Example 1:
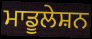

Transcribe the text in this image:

ਮਾਡੂਲੇਸ਼ਨ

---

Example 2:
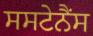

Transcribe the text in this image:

ਸਸਟੇਨੈਂਸ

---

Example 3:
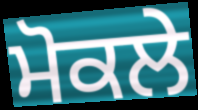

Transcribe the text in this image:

ਮੋਕਲੇ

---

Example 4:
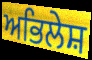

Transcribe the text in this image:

ਅਭਿਲੇਸ਼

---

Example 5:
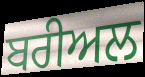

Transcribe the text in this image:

ਬਰੀਅਲ